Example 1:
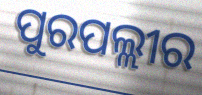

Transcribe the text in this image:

ପୁରପଲ୍ଲୀର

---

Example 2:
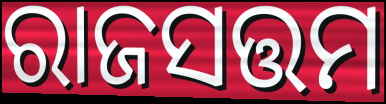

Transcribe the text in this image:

ରାଜସତ୍ତମ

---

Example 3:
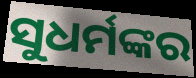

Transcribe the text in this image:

ସୁଧର୍ମଙ୍କର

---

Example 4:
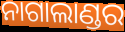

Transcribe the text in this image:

ନାଗାଲାଣ୍ଡର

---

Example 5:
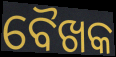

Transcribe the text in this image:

ବୈଖକ